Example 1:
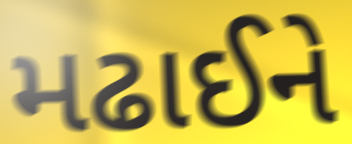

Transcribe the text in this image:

મઢાઈને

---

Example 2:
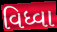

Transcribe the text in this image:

વિધ્વા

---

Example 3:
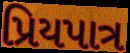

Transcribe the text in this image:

પ્રિયપાત્ર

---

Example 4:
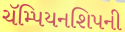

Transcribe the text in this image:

ચૅમ્પિયનશિપની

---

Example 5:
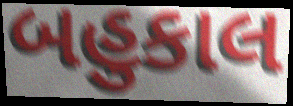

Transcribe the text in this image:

બહુકાલ